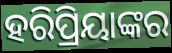
ହରିପ୍ରିୟାଙ୍କର